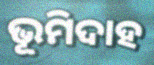
ଭୂମିଦାହ